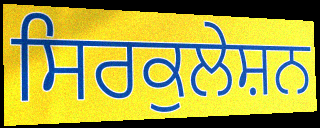
ਸਿਰਕੁਲੇਸ਼ਨ